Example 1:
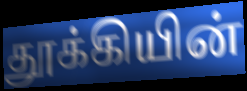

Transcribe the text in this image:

தூக்கியின்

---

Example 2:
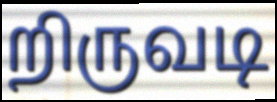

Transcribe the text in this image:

றிருவடி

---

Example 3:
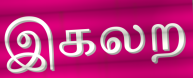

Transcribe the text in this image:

இகலற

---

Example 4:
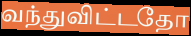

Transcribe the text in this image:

வந்துவிட்டதோ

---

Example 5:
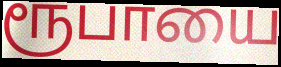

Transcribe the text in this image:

ரூபாயை